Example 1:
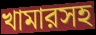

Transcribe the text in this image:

খামারসহ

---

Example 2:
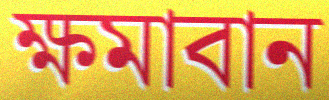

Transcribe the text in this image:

ক্ষমাবান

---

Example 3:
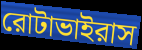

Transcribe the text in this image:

রোটাভাইরাস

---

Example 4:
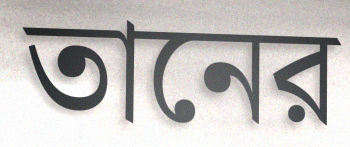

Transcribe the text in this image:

তানের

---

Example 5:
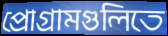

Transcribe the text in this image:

প্রোগ্রামগুলিতে